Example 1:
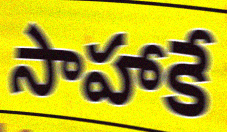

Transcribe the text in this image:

సాహాకే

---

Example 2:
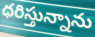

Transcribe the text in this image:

ధరిస్తున్నాను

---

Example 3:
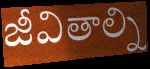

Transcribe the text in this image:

జీవితాల్ని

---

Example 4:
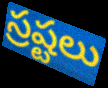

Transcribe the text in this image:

స్రష్టలు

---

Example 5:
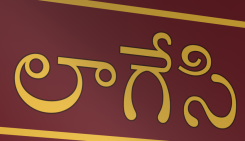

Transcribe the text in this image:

లాగేసి